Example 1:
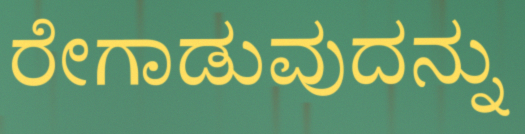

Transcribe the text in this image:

ರೇಗಾಡುವುದನ್ನು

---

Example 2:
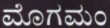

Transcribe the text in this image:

ಮೊಗಮಂ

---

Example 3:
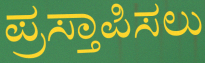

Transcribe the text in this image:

ಪ್ರಸ್ತಾಪಿಸಲು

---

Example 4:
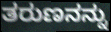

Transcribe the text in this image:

ತರುಣನನ್ನು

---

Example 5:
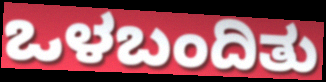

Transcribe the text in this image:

ಒಳಬಂದಿತು